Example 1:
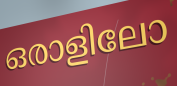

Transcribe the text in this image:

ഒരാളിലോ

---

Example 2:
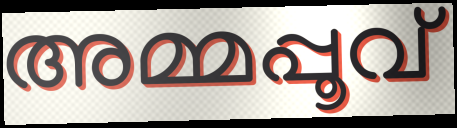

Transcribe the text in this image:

അമ്മപ്പൂവ്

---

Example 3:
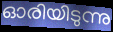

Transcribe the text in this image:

ഓരിയിടുന്നു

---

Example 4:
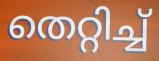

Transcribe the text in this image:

തെറ്റിച്ച്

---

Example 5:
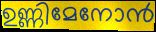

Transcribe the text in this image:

ഉണ്ണിമേനോൻ